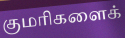
குமரிகளைக்